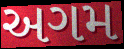
અગમ